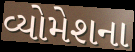
વ્યોમેશના